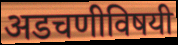
अडचणीविषयी